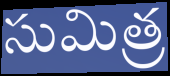
సుమిత్ర